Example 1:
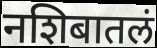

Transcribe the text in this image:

नशिबातलं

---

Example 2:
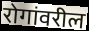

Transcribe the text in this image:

रोगांवरील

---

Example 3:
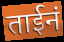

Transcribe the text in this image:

ताईनं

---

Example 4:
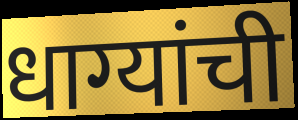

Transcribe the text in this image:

धाग्यांची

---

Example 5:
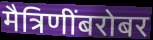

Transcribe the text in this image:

मैत्रिणींबरोबर